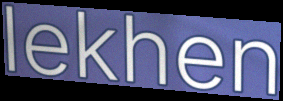
lekhen